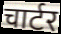
चार्टर